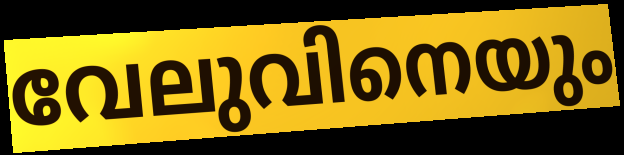
വേലുവിനെയും